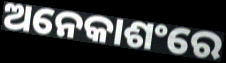
ଅନେକାଶଂରେ